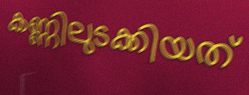
കണ്ണിലുടക്കിയത്